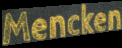
Mencken